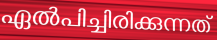
ഏൽപിച്ചിരിക്കുന്നത്